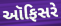
ઑફિસરે